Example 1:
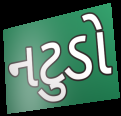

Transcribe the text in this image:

નટુડો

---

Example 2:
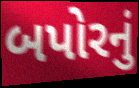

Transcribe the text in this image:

બપોરનું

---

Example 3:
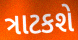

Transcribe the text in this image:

ત્રાટકશે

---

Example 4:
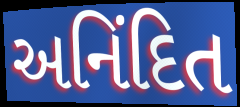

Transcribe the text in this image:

અનિંદિત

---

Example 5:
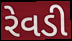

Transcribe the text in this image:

રેવડી